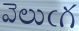
వెలుఁగ